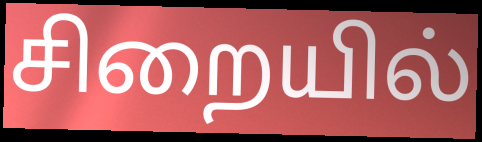
சிறையில்